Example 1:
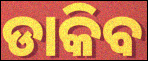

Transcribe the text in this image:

ଡାକିବ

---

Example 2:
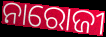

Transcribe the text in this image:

ନାରୋଜୀ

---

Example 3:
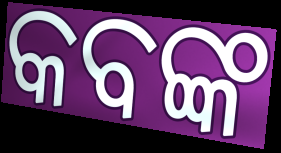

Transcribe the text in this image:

କବଙ୍କ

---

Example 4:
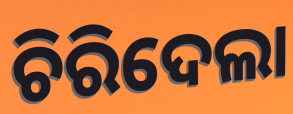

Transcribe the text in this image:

ଚିରିଦେଲା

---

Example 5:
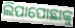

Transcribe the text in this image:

ଲିପାପୋଛାକୁ